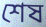
শেষ